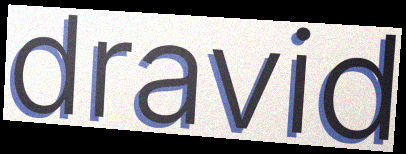
dravid